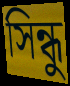
সিন্ধু